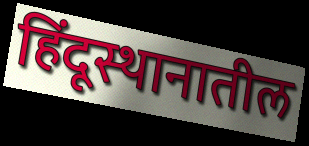
हिंदूस्थानातील